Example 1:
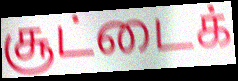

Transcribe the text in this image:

சூட்டைக்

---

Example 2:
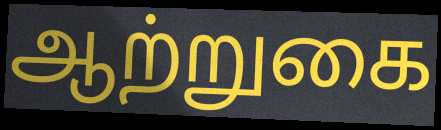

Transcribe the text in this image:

ஆற்றுகை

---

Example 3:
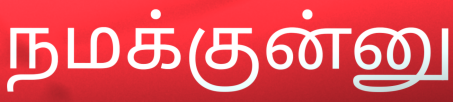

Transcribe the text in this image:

நமக்குன்னு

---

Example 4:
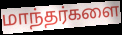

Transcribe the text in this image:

மாந்தர்களை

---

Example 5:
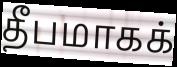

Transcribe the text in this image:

தீபமாகக்